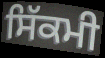
ਸਿੱਕਮੀ